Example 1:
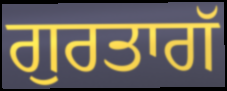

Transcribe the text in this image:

ਗੁਰਤਾਗੱ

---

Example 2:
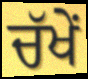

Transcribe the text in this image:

ਚੱਖੇਂ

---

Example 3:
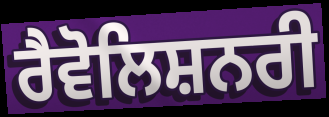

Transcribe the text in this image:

ਰੈਵੋਲਿਸ਼ਨਰੀ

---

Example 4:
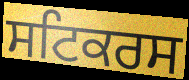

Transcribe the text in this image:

ਸਟਿਕਰਸ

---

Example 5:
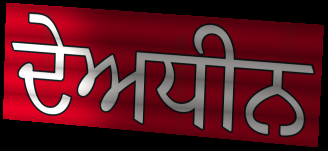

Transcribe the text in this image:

ਦੇਅਧੀਨ